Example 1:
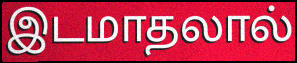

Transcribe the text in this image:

இடமாதலால்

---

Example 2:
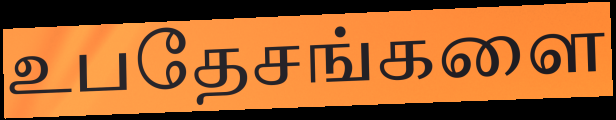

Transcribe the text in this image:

உபதேசங்களை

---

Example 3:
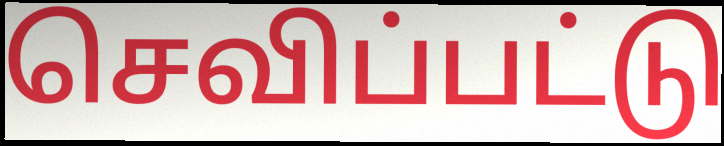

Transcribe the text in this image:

செவிப்பட்டு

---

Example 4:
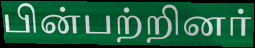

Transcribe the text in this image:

பின்பற்றினர்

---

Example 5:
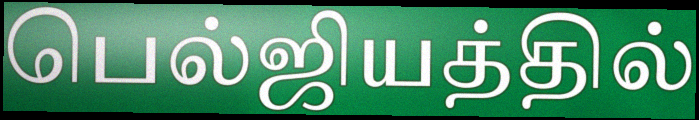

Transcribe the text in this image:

பெல்ஜியத்தில்